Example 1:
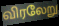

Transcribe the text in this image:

விரலேறு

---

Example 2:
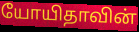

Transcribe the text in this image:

யோயிதாவின்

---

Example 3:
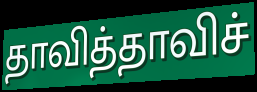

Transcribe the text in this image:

தாவித்தாவிச்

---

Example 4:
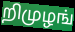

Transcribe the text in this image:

றிமுழங்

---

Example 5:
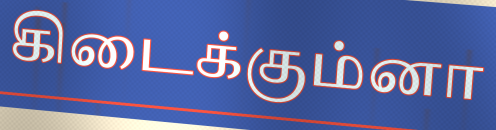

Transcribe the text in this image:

கிடைக்கும்னா